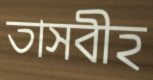
তাসবীহ